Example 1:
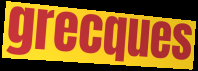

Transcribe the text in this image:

grecques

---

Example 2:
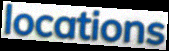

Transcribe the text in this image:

locations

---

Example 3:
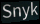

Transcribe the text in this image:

Snyk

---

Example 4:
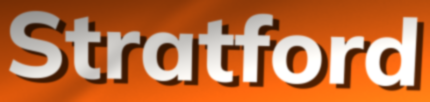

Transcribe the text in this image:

Stratford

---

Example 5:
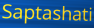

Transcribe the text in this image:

Saptashati